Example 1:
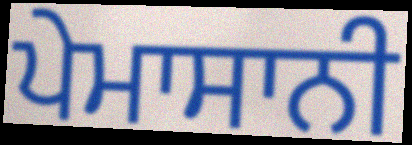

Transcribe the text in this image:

ਪੇਮਾਸਾਨੀ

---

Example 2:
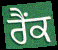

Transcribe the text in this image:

ਰੈੰਕ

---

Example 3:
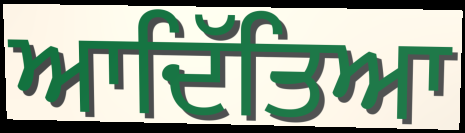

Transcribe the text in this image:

ਆਦਿੱਤਿਆ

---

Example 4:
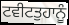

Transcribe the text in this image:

ਟਵੀਟਤੁਹਾਨੂੰ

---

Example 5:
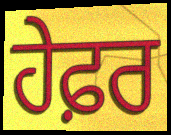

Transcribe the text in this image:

ਹੇਫ਼ਰ